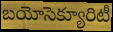
బయోసెక్యూరిటీ